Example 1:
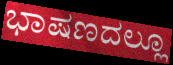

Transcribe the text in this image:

ಭಾಷಣದಲ್ಲೂ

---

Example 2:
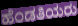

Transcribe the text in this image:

ಹೆಂಡತಿಯರು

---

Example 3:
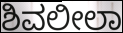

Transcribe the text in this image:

ಶಿವಲೀಲಾ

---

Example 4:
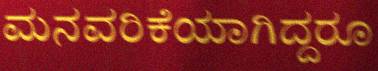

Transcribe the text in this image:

ಮನವರಿಕೆಯಾಗಿದ್ದರೂ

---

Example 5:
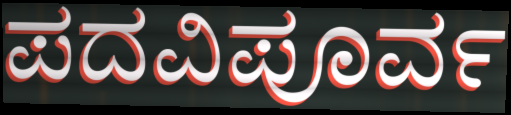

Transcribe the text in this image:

ಪದವಿಪೂರ್ವ